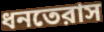
ধনতেরাস